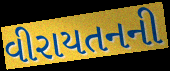
વીરાયતનની